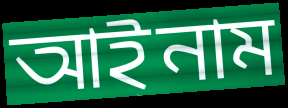
আইনাম